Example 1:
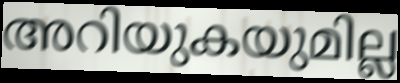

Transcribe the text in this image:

അറിയുകയുമില്ല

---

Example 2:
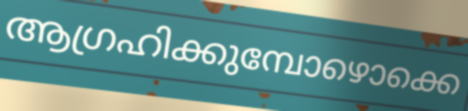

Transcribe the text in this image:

ആഗ്രഹിക്കുമ്പോഴൊക്കെ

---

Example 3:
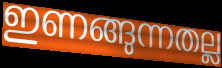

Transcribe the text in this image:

ഇണങ്ങുന്നതല്ല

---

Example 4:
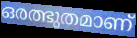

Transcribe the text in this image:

ഒരത്ഭുതമാണ്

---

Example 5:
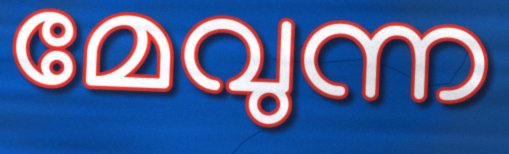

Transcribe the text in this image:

മേവുന്ന